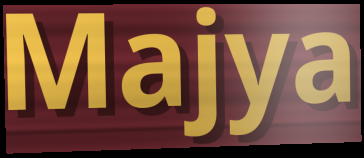
Majya